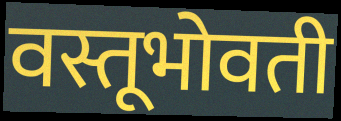
वस्तूभोवती